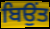
ਬਿਉਂਤ